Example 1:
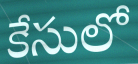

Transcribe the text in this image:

కేసులో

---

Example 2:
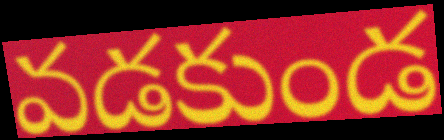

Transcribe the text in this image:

వడకుండ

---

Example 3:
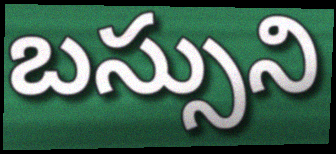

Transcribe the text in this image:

బస్సుని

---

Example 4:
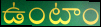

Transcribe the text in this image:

ఉంటాం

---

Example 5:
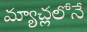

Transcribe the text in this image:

మ్యాచ్లలోనే